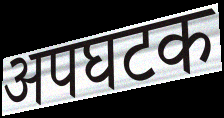
अपघटक